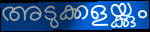
അടുക്കളയ്ക്കും